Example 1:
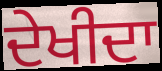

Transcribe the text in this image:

ਦੇਖੀਦਾ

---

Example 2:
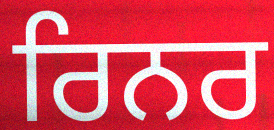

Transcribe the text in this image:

ਰਿਨਰ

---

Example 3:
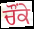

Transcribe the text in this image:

ਚੌਂਕੇ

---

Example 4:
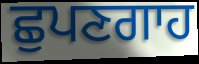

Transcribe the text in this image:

ਛੁਪਣਗਾਹ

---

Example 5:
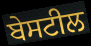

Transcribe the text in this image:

ਬੇਸਟੀਲ